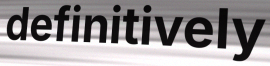
definitively